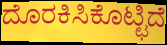
ದೊರಕಿಸಿಕೊಟ್ಟಿದೆ